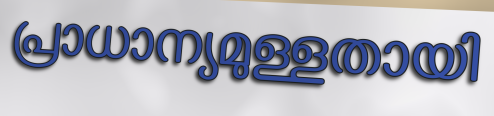
പ്രാധാന്യമുള്ളതായി